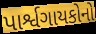
પાર્શ્વગાયકોનો